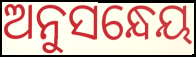
ଅନୁସନ୍ଧେୟ